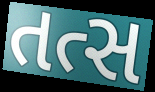
તત્સ